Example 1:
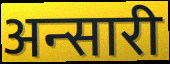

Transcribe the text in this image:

अन्सारी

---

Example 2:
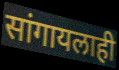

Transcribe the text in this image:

सांगायलाही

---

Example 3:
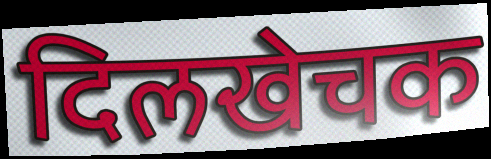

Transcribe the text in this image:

दिलखेचक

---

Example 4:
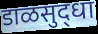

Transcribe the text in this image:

डाळसुद्धा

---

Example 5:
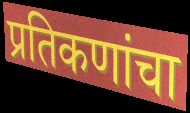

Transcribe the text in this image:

प्रतिकणांचा